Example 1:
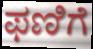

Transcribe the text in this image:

ಫಣಿಗೆ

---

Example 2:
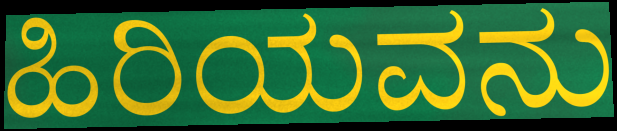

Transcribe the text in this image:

ಹಿರಿಯವನು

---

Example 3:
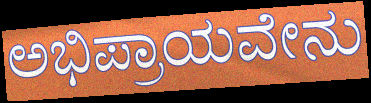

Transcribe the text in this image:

ಅಭಿಪ್ರಾಯವೇನು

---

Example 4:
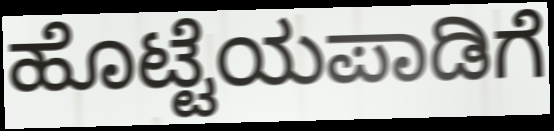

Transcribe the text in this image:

ಹೊಟ್ಟೆಯಪಾಡಿಗೆ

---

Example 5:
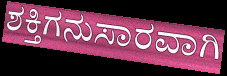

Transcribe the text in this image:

ಶಕ್ತಿಗನುಸಾರವಾಗಿ